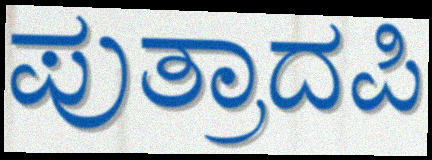
ಪುತ್ರಾದಪಿ